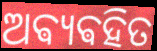
ଅଵ୍ୟଵହିତ